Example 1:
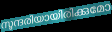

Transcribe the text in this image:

സുന്ദരിയായിരിക്കുമോ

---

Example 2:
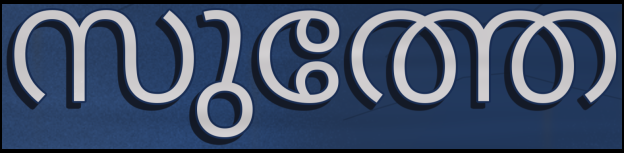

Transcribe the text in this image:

സുത്തേ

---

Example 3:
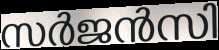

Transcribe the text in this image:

സർജൻസി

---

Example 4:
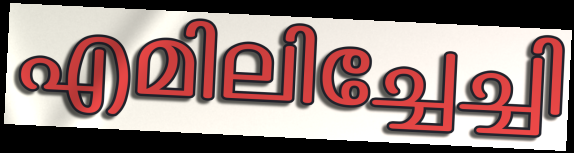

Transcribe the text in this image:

എമിലിച്ചേച്ചി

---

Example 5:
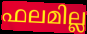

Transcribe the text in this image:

ഫലമില്ല